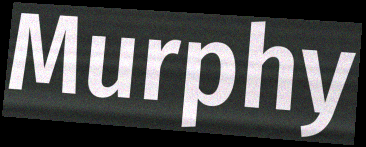
Murphy